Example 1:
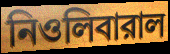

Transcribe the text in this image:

নিওলিবারাল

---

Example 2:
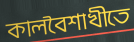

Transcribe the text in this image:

কালবৈশাখীতে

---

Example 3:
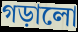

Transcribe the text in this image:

গড়ালো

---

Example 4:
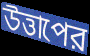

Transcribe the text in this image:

উত্তাপের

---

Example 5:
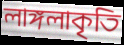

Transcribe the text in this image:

লাঙ্গলাকৃতি